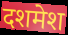
दशमेश